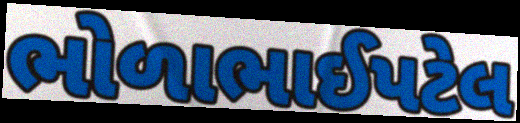
ભોળાભાઈપટેલ